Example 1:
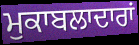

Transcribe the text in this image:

ਮੁਕਾਬਲਾਦਾਰਾਂ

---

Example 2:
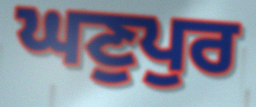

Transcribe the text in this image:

ਘਣੁਪੁਰ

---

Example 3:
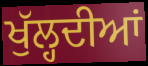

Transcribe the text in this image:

ਖੁੱਲ੍ਹਦੀਆਂ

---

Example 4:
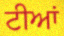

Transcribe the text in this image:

ਟੀਆਂ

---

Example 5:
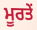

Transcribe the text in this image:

ਮੂਰਤੇਂ